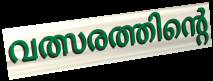
വത്സരത്തിന്റെ